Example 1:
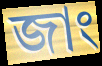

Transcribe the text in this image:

জাং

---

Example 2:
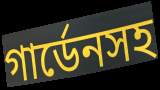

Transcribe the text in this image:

গার্ডেনসহ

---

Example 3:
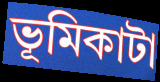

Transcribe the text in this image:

ভূমিকাটা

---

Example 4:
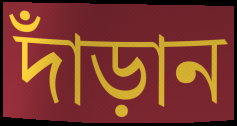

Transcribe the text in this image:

দাঁড়ান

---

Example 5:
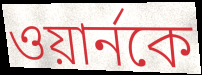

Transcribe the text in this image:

ওয়ার্নকে